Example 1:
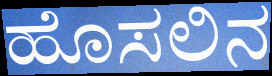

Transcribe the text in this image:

ಹೊಸಲಿನ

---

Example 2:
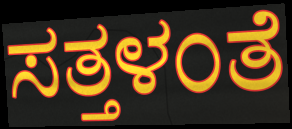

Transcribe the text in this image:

ಸತ್ತಳಂತೆ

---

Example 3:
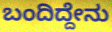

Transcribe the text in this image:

ಬಂದಿದ್ದೇನು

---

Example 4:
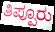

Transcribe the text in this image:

ತಿಪ್ಪೂರು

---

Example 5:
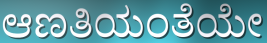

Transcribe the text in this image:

ಆಣತಿಯಂತೆಯೇ